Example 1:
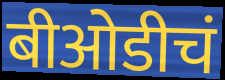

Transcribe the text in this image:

बीओडीचं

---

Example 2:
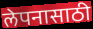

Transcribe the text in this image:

लेपनासाठी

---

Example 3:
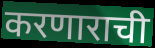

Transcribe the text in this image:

करणाराची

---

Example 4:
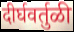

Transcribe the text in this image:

दीर्घवर्तुळी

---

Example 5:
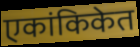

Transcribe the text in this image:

एकांकिकेत